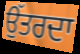
ਉੱਤਰਦਾ